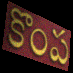
కొంప